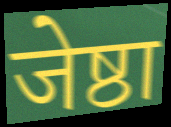
जेष्ठा